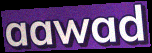
aawad